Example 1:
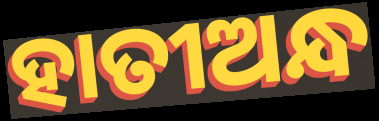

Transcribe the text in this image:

ହାତୀଅନ୍ଧ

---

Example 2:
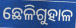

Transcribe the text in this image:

ଛେଳିଗୁହାଳ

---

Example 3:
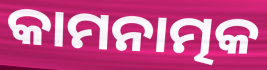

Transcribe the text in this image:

କାମନାତ୍ମକ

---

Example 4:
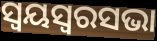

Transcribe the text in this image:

ସ୍ୱୟସ୍ୱରସଭା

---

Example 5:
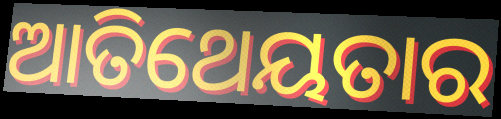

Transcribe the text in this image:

ଆତିଥେୟତାର